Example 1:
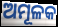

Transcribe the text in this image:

ଅମୂଳକ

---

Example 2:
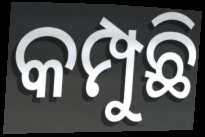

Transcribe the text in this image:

କମ୍ପୁଛି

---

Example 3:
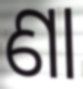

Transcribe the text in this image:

ଣା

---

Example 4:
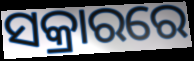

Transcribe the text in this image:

ସକ୍ରାରରେ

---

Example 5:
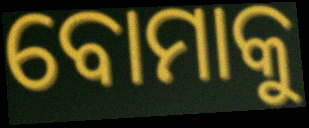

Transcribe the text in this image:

ବୋମାକୁ